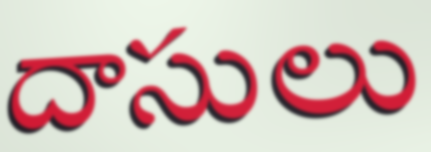
దాసులు